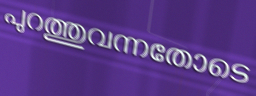
പുറത്തുവന്നതോടെ